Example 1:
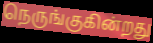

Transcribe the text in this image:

நெருங்குகின்றது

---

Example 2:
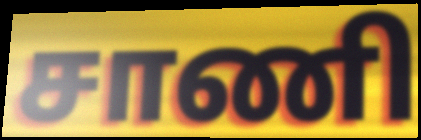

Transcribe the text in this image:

சாணி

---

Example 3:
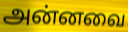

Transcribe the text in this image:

அன்னவை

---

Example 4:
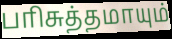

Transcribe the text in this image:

பரிசுத்தமாயும்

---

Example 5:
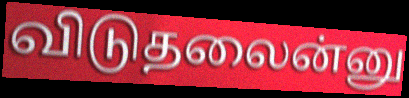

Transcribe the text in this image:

விடுதலைன்னு